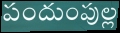
పందుంపుల్ల